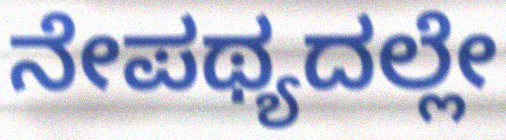
ನೇಪಥ್ಯದಲ್ಲೇ